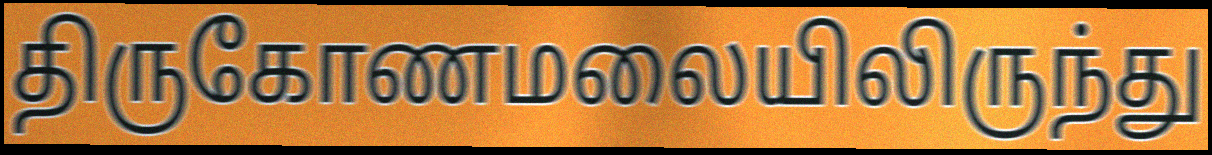
திருகோணமலையிலிருந்து